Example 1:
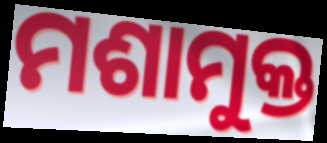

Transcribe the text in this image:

ମଶାମୁକ୍ତ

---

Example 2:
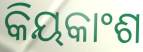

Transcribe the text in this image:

କିୟକାଂଶ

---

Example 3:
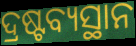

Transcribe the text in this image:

ଦ୍ରଷ୍ଟବ୍ୟସ୍ଥାନ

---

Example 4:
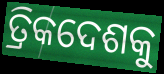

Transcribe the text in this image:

ତ୍ରିକଦେଶକୁ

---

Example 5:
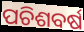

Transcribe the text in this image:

ପଚିଶବର୍ଷ